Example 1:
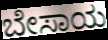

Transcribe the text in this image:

ಬೇಸಾಯ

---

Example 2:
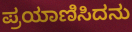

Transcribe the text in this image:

ಪ್ರಯಾಣಿಸಿದನು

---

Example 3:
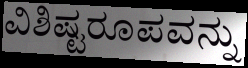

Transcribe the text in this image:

ವಿಶಿಷ್ಟರೂಪವನ್ನು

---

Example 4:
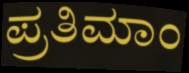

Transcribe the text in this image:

ಪ್ರತಿಮಾಂ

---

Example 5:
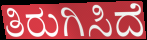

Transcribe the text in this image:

ತಿರುಗಿಸಿದೆ